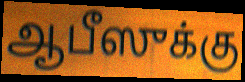
ஆபீஸுக்கு